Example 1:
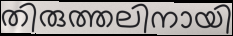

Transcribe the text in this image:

തിരുത്തലിനായി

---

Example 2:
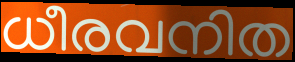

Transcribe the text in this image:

ധീരവനിത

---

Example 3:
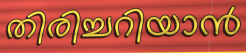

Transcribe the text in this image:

തിരിച്ചറിയാൻ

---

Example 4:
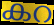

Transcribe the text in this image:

കറ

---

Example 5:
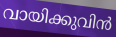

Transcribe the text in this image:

വായിക്കുവിൻ